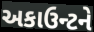
અકાઉન્ટને